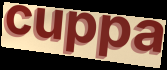
cuppa